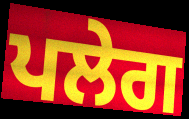
ਪਲੇਗ